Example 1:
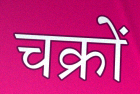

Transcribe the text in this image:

चक्रों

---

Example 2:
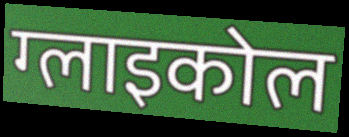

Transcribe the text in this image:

ग्लाइकोल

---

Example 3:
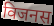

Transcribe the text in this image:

विजनस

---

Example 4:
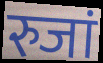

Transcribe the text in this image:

रुजां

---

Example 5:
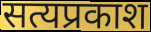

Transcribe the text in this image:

सत्यप्रकाश